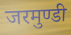
जरमुण्डी